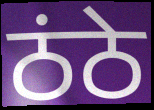
ठंठे